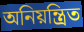
অনিয়ন্ত্ৰিত